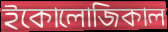
ইকোলোজিকাল